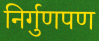
निर्गुणपण